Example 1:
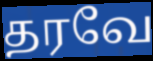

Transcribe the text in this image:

தரவே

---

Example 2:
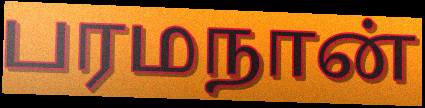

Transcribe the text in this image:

பரமநான்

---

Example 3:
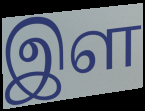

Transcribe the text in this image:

இள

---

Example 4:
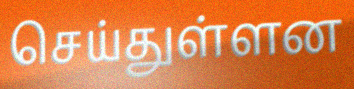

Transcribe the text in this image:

செய்துள்ளன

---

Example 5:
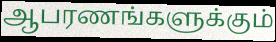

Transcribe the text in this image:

ஆபரணங்களுக்கும்